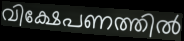
വിക്ഷേപണത്തിൽ